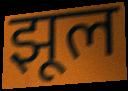
झूल